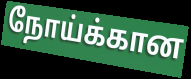
நோய்க்கான